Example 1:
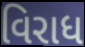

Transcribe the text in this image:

વિરાધ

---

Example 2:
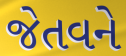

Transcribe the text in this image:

જેતવને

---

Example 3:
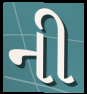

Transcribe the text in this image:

ની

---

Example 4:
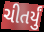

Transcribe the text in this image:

ચીતર્યું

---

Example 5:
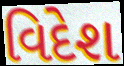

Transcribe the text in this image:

વિદેશ